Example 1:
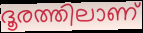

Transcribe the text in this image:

ദൂരത്തിലാണ്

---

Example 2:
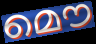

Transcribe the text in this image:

മൌ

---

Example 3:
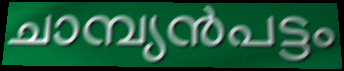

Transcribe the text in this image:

ചാമ്പ്യൻപട്ടം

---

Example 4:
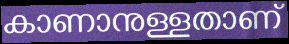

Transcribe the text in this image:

കാണാനുള്ളതാണ്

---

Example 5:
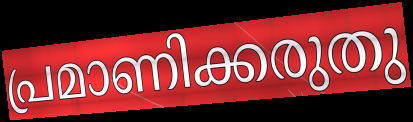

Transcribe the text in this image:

പ്രമാണിക്കരുതു